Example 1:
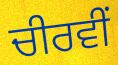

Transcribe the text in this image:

ਚੀਰਵੀਂ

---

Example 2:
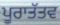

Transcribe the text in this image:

ਪੂਰਾਤੱਤਵ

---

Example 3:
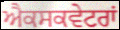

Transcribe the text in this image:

ਐਕਸਕਵੇਟਰਾਂ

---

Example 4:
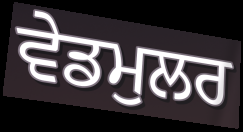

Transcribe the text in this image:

ਵੇਡਮੁਲਰ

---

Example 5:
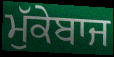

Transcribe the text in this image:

ਮੁੱਕੇਬਾਜ